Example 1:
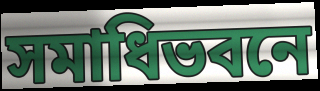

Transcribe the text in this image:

সমাধিভবনে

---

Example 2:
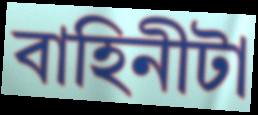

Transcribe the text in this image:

বাহিনীটা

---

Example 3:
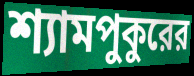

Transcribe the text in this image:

শ্যামপুকুরের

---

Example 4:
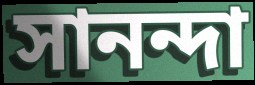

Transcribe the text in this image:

সানন্দা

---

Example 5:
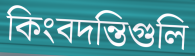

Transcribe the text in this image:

কিংবদন্তিগুলি